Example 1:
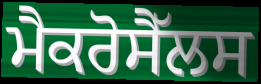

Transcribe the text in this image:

ਮੈਕਰੋਸੈੱਲਸ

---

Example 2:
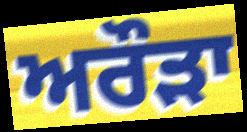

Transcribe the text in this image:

ਅਰੌੜਾ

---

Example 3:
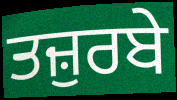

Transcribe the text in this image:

ਤਜ਼ੁਰਬੇ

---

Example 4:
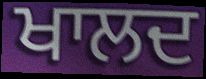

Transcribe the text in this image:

ਖਾਲਦ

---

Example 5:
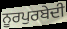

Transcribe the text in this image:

ਨੂਰਪੁਰਬੇਦੀ